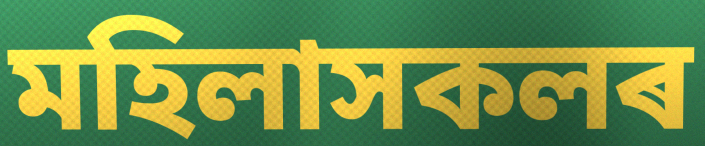
মহিলাসকলৰ